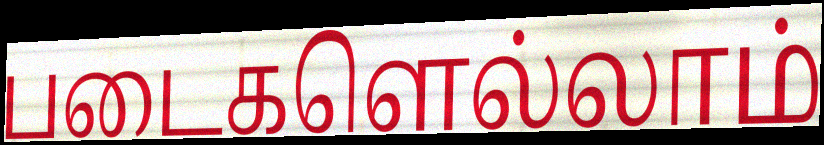
படைகளெல்லாம்